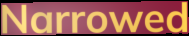
Narrowed